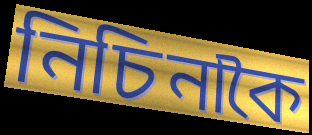
নিচিনাকৈ